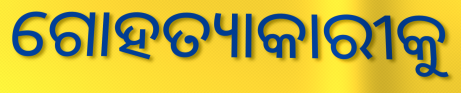
ଗୋହତ୍ୟାକାରୀକୁ